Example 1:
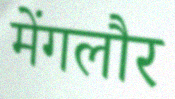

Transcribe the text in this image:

मेंगलौर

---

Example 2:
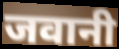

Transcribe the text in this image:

जवानी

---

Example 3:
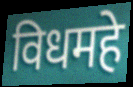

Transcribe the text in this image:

विधमहे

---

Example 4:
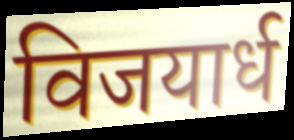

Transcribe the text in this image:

विजयार्ध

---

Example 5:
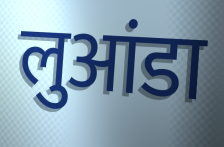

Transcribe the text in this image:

लुआंडा